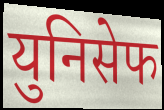
युनिसेफ